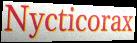
Nycticorax